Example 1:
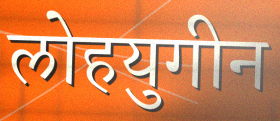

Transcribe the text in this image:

लोहयुगीन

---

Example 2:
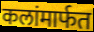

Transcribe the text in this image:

कलांमार्फत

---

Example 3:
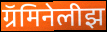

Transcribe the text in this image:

ग्रॅमिनेलीझ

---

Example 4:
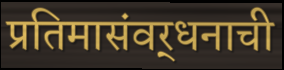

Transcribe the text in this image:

प्रतिमासंवर्धनाची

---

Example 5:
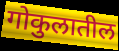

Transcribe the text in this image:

गोकुलातील